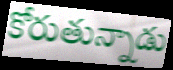
కోరుతున్నాడు